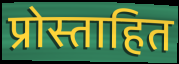
प्रोस्ताहित